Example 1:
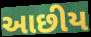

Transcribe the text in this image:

આછીય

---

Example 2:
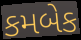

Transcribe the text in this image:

કમબેક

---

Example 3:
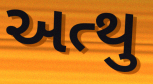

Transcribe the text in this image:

અત્થુ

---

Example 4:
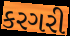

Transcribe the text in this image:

કરગરી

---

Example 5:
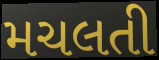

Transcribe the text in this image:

મચલતી